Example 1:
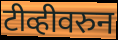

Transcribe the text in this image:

टीव्हीवरुन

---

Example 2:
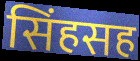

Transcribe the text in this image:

सिंहसह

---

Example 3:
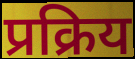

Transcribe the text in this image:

प्रक्रिय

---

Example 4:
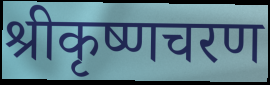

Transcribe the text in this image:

श्रीकृष्णचरण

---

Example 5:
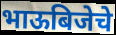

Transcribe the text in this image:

भाऊबिजेचे